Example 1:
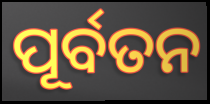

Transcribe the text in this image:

ପୂର୍ବତନ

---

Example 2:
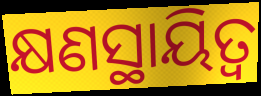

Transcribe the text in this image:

କ୍ଷଣସ୍ଥାୟିତ୍ୱ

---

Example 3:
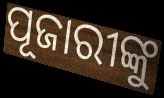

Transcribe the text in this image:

ପୂଜାରୀଙ୍କୁ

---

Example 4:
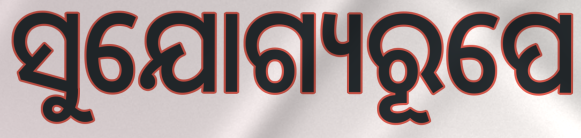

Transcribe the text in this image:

ସୁଯୋଗ୍ୟରୂପେ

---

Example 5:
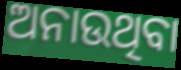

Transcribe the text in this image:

ଅନାଉଥିବା